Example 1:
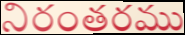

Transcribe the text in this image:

నిరంతరము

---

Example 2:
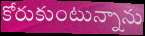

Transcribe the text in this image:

కోరుకుంటున్నాను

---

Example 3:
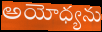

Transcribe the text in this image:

అయోధ్యను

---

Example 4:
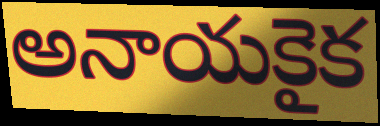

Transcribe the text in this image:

అనాయకైక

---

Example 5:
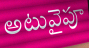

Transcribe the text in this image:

అటువైపూ